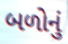
બળોનું